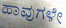
ಹಾವುಗಳೇ